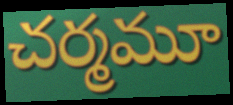
చర్మమూ